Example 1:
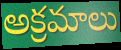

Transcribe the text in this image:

అక్రమాలు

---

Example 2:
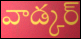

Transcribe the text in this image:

వాడ్కర్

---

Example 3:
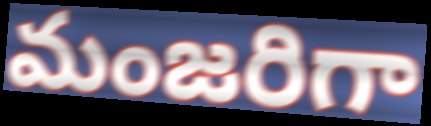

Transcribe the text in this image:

మంజరిగా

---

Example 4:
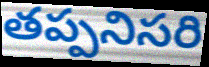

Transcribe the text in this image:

తప్పనిసరి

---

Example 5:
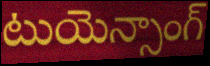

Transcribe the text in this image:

టుయెన్సాంగ్